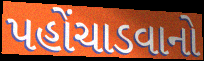
પહોંચાડવાનો